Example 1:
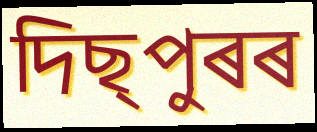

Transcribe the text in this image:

দিছ্পুৰৰ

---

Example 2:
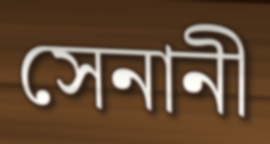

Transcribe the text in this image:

সেনানী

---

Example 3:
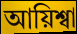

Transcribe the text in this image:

আয়িশ্বা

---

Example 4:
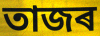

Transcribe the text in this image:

তাজৰ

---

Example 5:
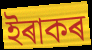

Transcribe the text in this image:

ইৰাকৰ